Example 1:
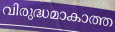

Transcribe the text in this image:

വിരുദ്ധമാകാത്ത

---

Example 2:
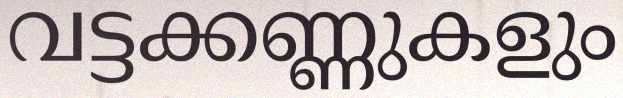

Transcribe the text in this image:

വട്ടക്കണ്ണുകളും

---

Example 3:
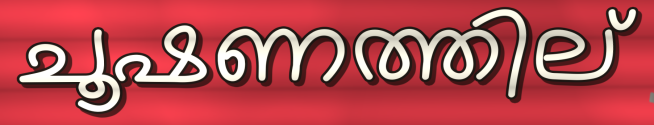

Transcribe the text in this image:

ചൂഷണത്തില്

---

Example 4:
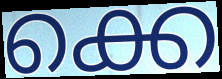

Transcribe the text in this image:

ക്കെ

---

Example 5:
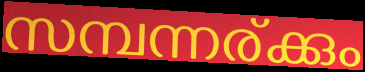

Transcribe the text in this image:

സമ്പന്നര്ക്കും